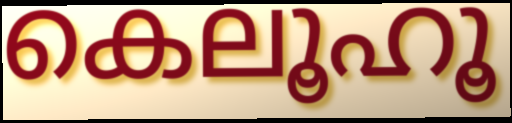
കെലൂഹൂ